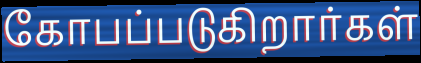
கோபப்படுகிறார்கள்